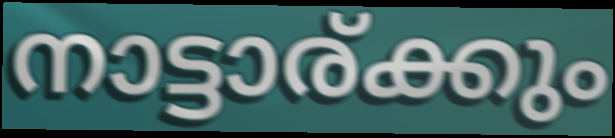
നാട്ടാര്ക്കും